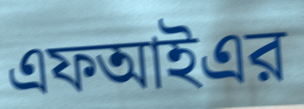
এফআইএর